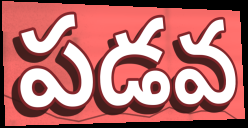
పడవ